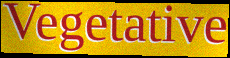
Vegetative